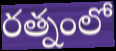
రత్నంలో